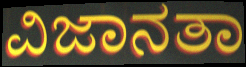
ವಿಜಾನತಾ